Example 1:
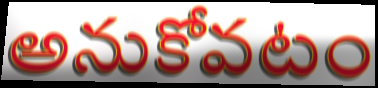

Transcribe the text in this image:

అనుకోవటం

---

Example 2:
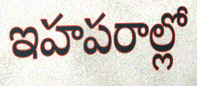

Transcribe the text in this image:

ఇహపరాల్లో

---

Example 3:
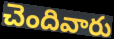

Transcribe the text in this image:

చెందివారు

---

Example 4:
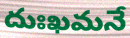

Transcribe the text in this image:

దుఃఖమనే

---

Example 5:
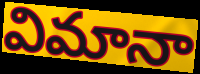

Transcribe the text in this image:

విమానా